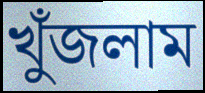
খুঁজলাম